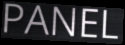
PANEL